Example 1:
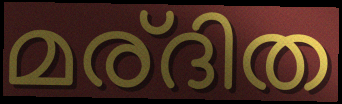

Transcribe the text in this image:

മര്ദിത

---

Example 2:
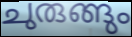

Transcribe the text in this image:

ചുരുങ്ങും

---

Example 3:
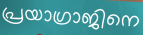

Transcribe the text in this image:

പ്രയാഗ്രാജിനെ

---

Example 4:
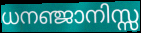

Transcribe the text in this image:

ധനഞ്ജാനിസ്സ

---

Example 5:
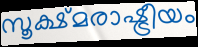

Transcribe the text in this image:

സൂക്ഷ്മരാഷ്ട്രീയം